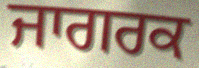
ਜਾਗਰਕ